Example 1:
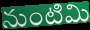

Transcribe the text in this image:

నుంటిమి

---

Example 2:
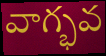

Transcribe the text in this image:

వాగ్భవ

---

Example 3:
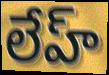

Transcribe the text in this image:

లేహ్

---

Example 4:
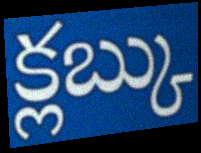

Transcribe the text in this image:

క్లబ్కు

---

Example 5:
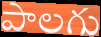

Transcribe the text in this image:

పాలగు